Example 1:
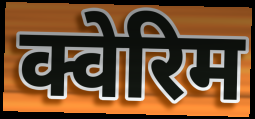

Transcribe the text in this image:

क्वेरिम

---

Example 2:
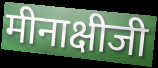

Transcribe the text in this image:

मीनाक्षीजी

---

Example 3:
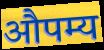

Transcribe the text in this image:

औपम्य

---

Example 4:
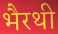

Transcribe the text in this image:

भैरथी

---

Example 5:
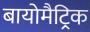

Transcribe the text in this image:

बायोमैट्रिक